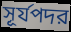
সূর্যপদর